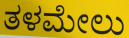
ತಳಮೇಲು